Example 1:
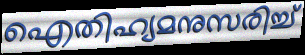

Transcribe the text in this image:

ഐതിഹ്യമനുസരിച്ച്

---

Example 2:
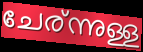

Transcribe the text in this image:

ചേര്ന്നുള്ള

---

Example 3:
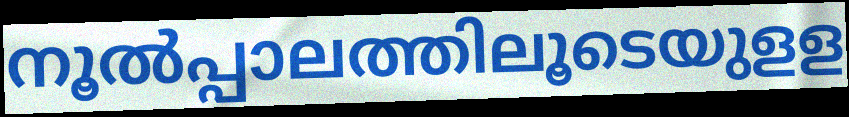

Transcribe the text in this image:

നൂൽപ്പാലത്തിലൂടെയുളള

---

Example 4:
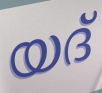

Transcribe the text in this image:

യദ്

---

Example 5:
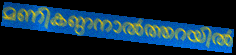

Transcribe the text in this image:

മണികണ്ഠനാൽത്തറയിൽ